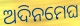
ଅଦିନମେଘ